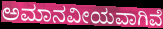
ಅಮಾನವೀಯವಾಗಿವೆ